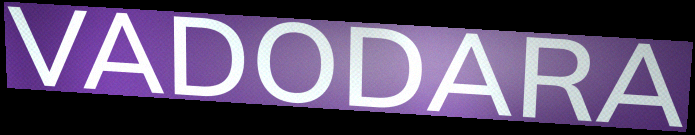
VADODARA